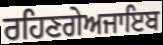
ਰਹਿਣਗੇਅਜਾਇਬ